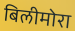
बिलीमोरा